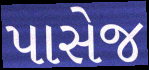
પાસેજ